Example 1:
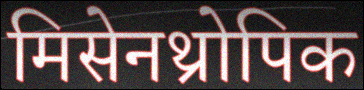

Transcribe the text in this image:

मिसेनथ्रोपिक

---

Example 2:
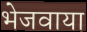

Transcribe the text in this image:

भेजवाया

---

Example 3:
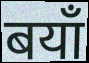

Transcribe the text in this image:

बयाँ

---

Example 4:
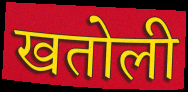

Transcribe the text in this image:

खतोली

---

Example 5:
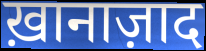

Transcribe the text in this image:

ख़ानाज़ाद